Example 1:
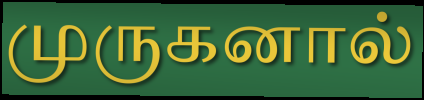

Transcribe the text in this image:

முருகனால்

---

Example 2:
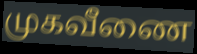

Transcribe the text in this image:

முகவீணை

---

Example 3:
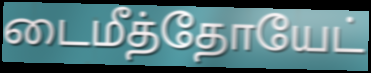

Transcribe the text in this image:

டைமீத்தோயேட்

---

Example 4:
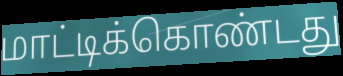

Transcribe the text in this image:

மாட்டிக்கொண்டது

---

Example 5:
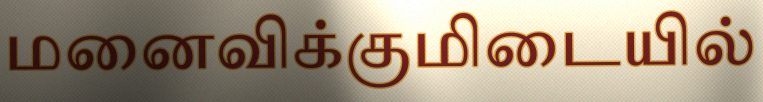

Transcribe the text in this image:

மனைவிக்குமிடையில்